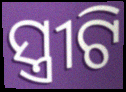
ସ୍ତ୍ରୀଟି